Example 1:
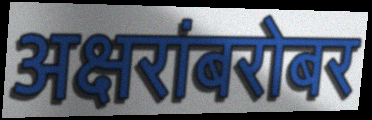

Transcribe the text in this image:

अक्षरांबरोबर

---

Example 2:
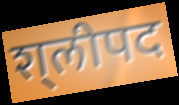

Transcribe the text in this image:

श्लीपद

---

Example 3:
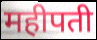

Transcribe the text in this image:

महीपती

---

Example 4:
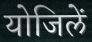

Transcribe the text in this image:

योजिलें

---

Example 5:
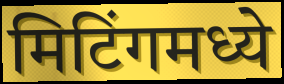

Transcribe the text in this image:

मिटिंगमध्ये